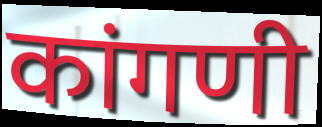
कांगणी